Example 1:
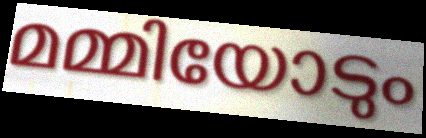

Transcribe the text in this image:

മമ്മിയോടും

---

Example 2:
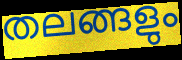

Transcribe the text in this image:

തലങ്ങളും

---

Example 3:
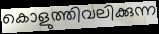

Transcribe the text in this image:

കൊളുത്തിവലിക്കുന്ന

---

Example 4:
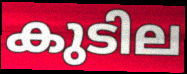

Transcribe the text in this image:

കുടില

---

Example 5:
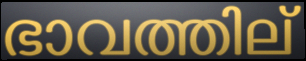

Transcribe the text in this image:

ഭാവത്തില്